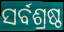
ସର୍ବଶ୍ରଷ୍ଠ